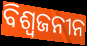
ବିଶ୍ବଜନୀନ